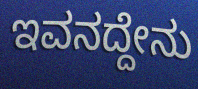
ಇವನದ್ದೇನು